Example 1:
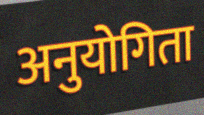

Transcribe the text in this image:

अनुयोगिता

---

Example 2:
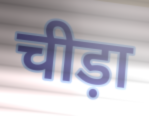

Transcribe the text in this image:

चीड़ा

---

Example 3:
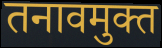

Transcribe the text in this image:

तनावमुक्त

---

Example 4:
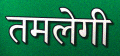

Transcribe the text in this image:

तमलेगी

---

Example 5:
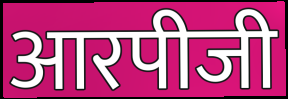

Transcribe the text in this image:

आरपीजी